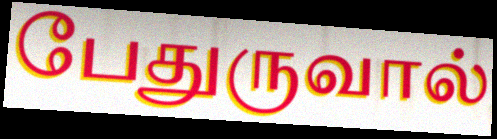
பேதுருவால்